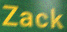
Zack